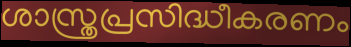
ശാസ്ത്രപ്രസിദ്ധീകരണം